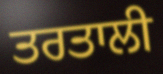
ਤਰਤਾਲੀ